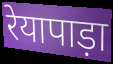
रेयापाड़ा